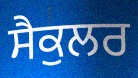
ਸੈਕੁਲਰ